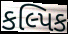
કલ્પિક